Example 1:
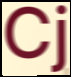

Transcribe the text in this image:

Cj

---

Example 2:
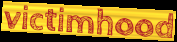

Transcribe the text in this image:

victimhood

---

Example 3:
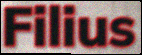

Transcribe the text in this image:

Filius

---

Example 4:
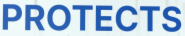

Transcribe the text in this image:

PROTECTS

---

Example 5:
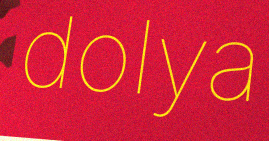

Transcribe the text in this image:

dolya